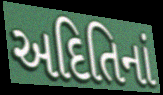
અદિતિનાં